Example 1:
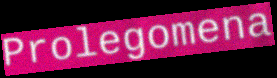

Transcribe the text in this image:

Prolegomena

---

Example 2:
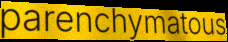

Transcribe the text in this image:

parenchymatous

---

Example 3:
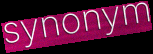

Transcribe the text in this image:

synonym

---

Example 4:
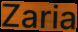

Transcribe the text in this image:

Zaria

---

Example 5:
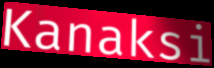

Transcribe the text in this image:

Kanaksi